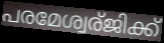
പരമേശ്വര്ജിക്ക്